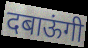
दबाऊंगी